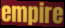
empire